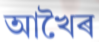
আখৈৰ